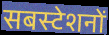
सबस्टेशनों